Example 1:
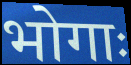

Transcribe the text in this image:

भोगाः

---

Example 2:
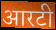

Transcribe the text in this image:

आरटी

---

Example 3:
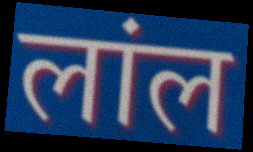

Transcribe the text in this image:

लांल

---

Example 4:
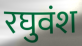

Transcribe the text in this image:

रघुवंश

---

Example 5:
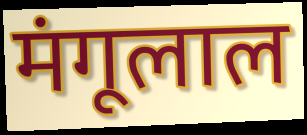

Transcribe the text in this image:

मंगूलाल